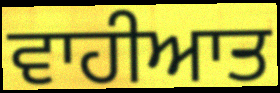
ਵਾਹੀਆਤ